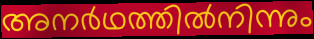
അനർഥത്തിൽനിന്നും